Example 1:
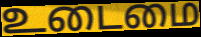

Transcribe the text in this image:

உடைமை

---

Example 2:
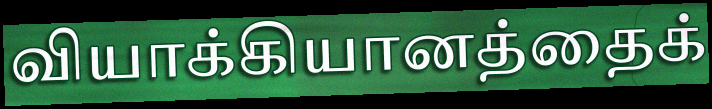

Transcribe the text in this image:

வியாக்கியானத்தைக்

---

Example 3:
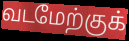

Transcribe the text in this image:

வடமேற்குக்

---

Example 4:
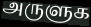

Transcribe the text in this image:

அருளுக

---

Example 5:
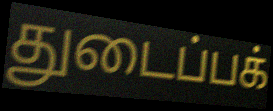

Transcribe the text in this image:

துடைப்பக்